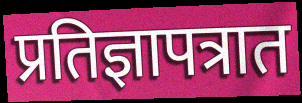
प्रतिज्ञापत्रात